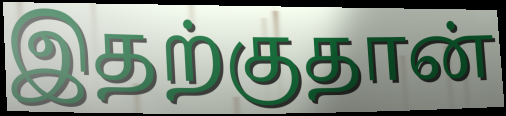
இதற்குதான்